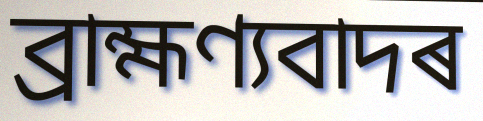
ব্ৰাহ্মণ্যবাদৰ